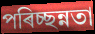
পৰিচ্ছন্নতা